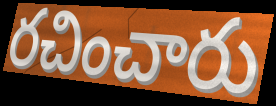
రచించారు